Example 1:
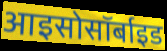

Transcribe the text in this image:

आइसोसॉर्बाइड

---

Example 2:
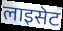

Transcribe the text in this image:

लाइसेट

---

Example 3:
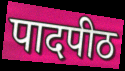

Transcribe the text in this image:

पादपीठ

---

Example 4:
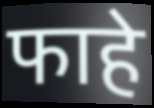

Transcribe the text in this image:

फाहे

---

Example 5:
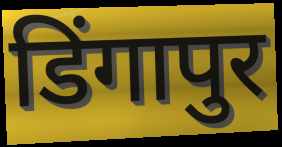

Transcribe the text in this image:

डिंगापुर